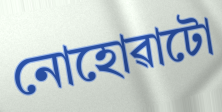
নোহোৱাটো